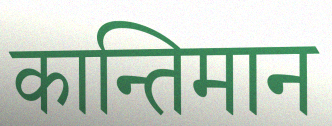
कान्तिमान